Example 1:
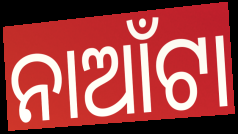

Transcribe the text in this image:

ନାଆଁଟା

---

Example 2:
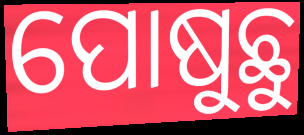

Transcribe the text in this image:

ପୋଷୁଛୁ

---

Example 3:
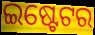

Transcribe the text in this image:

ଇଷ୍ଟେଟର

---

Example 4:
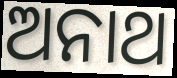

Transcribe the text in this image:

ଅନାଥ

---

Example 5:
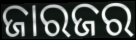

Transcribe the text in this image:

ଜାରଜର